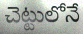
చెట్టులోనే